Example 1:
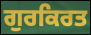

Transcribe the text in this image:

ਗੁਰਕਿਰਤ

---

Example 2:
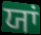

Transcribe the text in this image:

ਯਾਂ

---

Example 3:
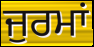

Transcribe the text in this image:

ਜੁਰਮਾਂ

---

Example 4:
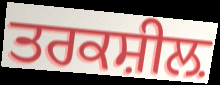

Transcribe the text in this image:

ਤਰਕਸ਼ੀਲ਼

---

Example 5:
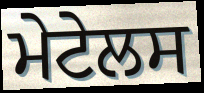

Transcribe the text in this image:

ਮੇਟੇਲਸ